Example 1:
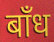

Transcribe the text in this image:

बाँध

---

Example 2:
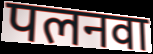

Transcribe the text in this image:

पलनवा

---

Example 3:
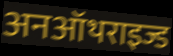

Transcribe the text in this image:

अनऑथराइज्ड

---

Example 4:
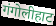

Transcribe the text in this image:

गंगोलीहाट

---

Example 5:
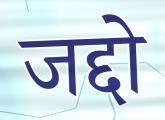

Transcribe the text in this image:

जद्दो